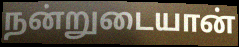
நன்றுடையான்